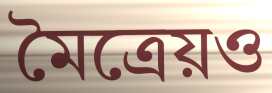
মৈত্রেয়ও